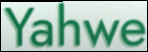
Yahwe